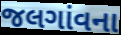
જલગાંવના